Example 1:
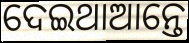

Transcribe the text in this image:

ଦେଇଥାଆନ୍ତେ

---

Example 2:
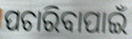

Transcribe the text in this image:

ପଚାରିବାପାଇଁ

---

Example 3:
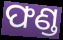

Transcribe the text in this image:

ଫଣ୍ଡ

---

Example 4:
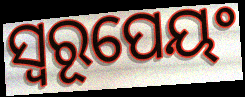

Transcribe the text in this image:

ସ୍ୱରୂପେୟଂ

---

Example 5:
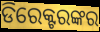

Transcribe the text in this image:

ଡିରେକ୍ଟରଙ୍କର